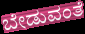
ಬೇಡುವಂತೆ